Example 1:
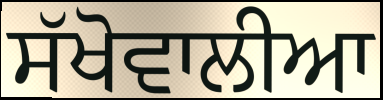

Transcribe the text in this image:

ਸੱਖੋਵਾਲੀਆ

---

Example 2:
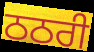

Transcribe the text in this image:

ਠਠਰੀ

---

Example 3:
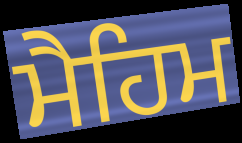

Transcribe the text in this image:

ਮੈਹਿਮ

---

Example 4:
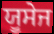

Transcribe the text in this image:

ਯੂਸੇਜ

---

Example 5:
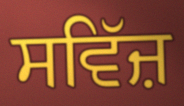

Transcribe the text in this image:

ਸਵਿੱਜ਼